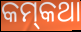
କମ୍‌କଥା